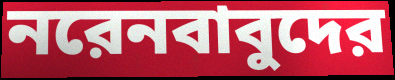
নরেনবাবুদের